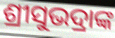
ଶ୍ରୀସୁଭଦ୍ରାଙ୍କ